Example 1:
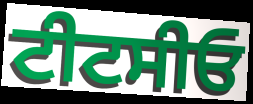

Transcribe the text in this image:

ਟੀਟਸੀਓ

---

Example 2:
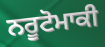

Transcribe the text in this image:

ਨਰੂਟੋਮਾਕੀ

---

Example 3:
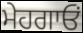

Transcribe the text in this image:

ਮੇਹਗਾਓਂ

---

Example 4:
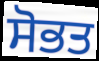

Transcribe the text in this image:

ਸੋਭਤ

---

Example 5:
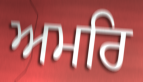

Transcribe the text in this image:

ਅਮਰਿ